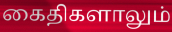
கைதிகளாலும்